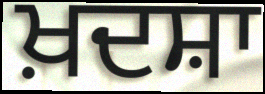
ਖ਼ਦਸ਼ਾ